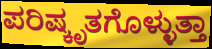
ಪರಿಷ್ಕೃತಗೊಳ್ಳುತ್ತಾ